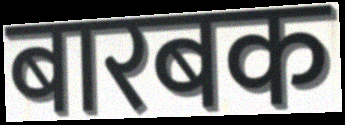
बारबक